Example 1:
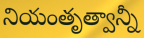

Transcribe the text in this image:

నియంతృత్వాన్నీ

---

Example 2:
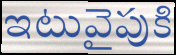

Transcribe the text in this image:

ఇటువైపుకి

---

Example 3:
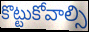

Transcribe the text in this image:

కొట్టుకోవాల్సి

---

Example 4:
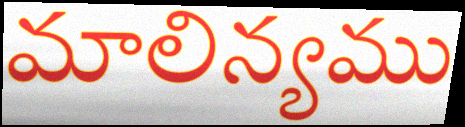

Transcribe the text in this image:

మాలిన్యము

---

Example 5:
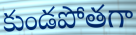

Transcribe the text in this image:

కుండపోతగా